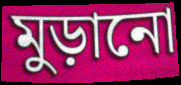
মুড়ানো